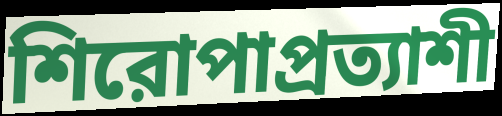
শিরোপাপ্রত্যাশী